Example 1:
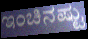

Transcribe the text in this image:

ಇಂಚಿನಷ್ಟು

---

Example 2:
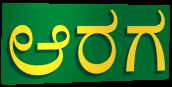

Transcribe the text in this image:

ಆರಗ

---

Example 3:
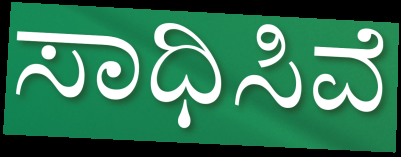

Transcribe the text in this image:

ಸಾಧಿಸಿವೆ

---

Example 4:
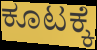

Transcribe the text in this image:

ಕೂಟಕ್ಕೆ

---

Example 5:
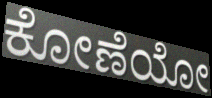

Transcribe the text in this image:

ಕೋಣೆಯೋ